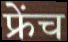
फ्रेंच